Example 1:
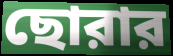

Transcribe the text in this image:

ছোরার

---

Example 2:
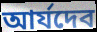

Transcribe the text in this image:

আর্যদেব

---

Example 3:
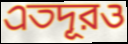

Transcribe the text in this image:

এতদূরও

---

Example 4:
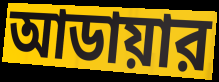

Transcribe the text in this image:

আডায়ার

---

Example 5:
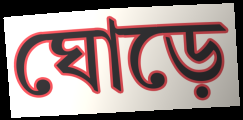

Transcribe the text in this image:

ঘোড়ে